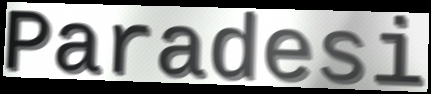
Paradesi